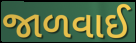
જાળવાઈ